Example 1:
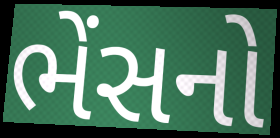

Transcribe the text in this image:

ભેંસનો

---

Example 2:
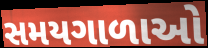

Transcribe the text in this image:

સમયગાળાઓ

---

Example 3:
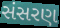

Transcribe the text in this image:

સંસરણ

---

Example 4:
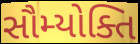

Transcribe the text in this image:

સૌમ્યોક્તિ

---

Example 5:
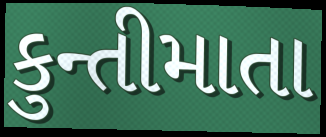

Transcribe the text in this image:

કુન્તીમાતા